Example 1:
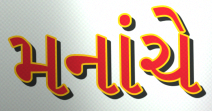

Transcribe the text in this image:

મનાંચે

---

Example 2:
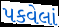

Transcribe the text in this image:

પકવેલાં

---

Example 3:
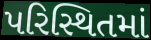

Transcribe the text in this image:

પરિસ્થિતમાં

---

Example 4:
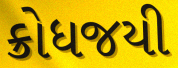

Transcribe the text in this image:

ક્રોધજયી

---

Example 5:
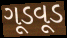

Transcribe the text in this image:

ગૂડવૂડ